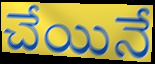
చేయినే